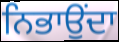
ਨਿਭਾਉਂਦਾ